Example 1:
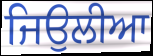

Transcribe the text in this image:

ਜਿਉਲੀਆ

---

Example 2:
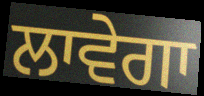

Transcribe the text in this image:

ਲਾਵੇਗਾ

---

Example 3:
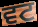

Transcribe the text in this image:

ਵਟ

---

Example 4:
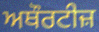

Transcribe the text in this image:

ਅਥੌਰਟੀਜ਼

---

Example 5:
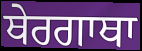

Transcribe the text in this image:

ਥੇਰਗਾਥਾ